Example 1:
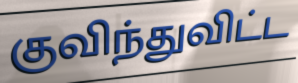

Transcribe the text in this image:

குவிந்துவிட்ட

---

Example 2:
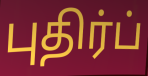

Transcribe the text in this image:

புதிர்ப்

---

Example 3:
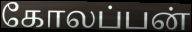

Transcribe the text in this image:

கோலப்பன்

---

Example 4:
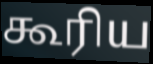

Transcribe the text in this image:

கூரிய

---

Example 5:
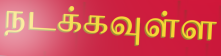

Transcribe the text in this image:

நடக்கவுள்ள